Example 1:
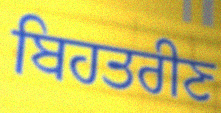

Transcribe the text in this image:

ਬਿਹਤਰੀਣ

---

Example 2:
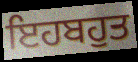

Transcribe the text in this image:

ਇਹਬਹੁਤ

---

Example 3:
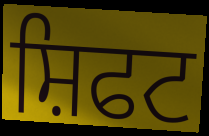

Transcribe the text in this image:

ਸ਼ਿਫਟ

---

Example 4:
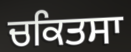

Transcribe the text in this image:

ਚਕਿਤਸਾ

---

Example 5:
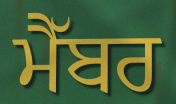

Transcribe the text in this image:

ਮੈੱਬਰ